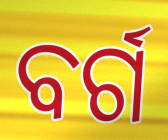
ବର୍ଗ